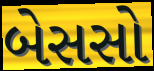
બેસસો